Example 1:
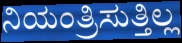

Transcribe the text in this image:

ನಿಯಂತ್ರಿಸುತ್ತಿಲ್ಲ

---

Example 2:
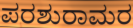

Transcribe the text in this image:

ಪರಶುರಾಮರ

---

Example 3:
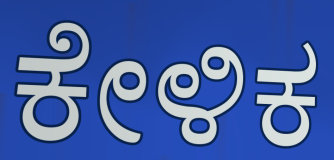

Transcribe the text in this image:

ಕೇಳಿಕ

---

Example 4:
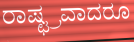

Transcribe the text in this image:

ರಾಷ್ಟ್ರವಾದರೂ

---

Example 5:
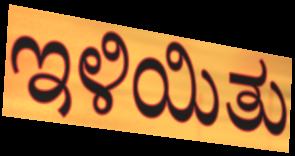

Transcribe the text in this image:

ಇಳಿಯಿತು